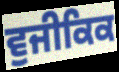
ਵੁਜੀਕਿਕ